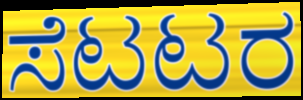
ಸೆಟಟರ